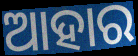
ଆହାର